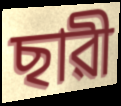
ছাৱী